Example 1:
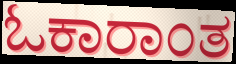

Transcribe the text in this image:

ಓಕಾರಾಂತ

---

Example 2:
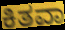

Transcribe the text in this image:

ಕಿತವಾ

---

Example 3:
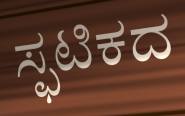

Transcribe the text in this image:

ಸ್ಫಟಿಕದ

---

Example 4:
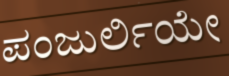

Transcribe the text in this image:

ಪಂಜುರ್ಲಿಯೇ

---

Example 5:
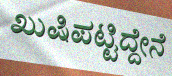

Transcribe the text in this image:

ಖುಷಿಪಟ್ಟಿದ್ದೇನೆ